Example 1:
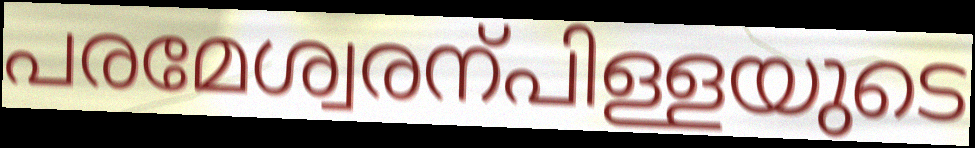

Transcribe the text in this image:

പരമേശ്വരന്പിള്ളയുടെ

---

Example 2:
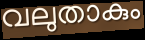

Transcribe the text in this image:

വലുതാകും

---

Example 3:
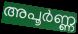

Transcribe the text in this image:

അപൂർണ്ണ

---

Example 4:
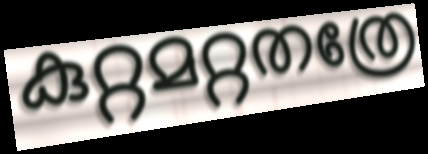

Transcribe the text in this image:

കുറ്റമറ്റതത്രേ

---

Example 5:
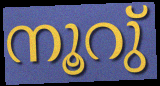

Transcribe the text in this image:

നൂറു്